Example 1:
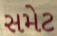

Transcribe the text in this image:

સમેટ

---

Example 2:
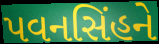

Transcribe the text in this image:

પવનસિંહને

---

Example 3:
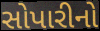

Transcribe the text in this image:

સોપારીનો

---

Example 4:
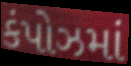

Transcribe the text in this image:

કંપોઝમાં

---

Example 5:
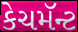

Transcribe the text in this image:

કેચમૅન્ટ